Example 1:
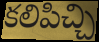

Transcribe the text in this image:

కలిపిచ్చి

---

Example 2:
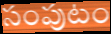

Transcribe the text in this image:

సంపుటం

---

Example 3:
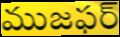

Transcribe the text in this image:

ముజఫర్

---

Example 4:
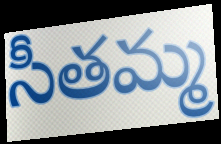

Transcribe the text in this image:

సీతమ్మ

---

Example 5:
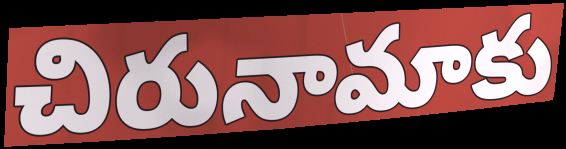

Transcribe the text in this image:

చిరునామాకు